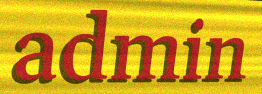
admin